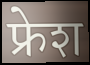
फ्रेश